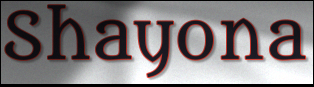
Shayona